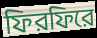
ফিরফিরে